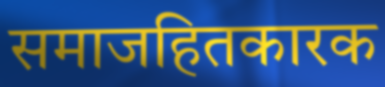
समाजहितकारक